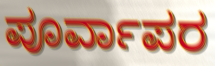
ಪೂರ್ವಾಪರ